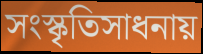
সংস্কৃতিসাধনায়